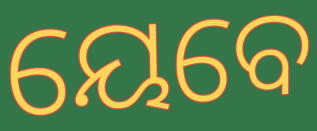
ୟେବେ